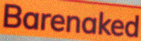
Barenaked